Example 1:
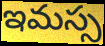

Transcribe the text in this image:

ఇమస్స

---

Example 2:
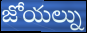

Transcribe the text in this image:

జోయల్ను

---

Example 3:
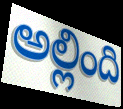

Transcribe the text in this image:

అల్లింది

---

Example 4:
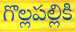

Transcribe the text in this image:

గొల్లపల్లికి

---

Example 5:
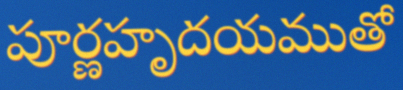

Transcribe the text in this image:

పూర్ణహృదయముతో